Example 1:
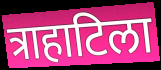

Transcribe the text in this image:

त्राहाटिला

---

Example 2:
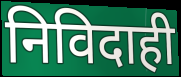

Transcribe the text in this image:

निविदाही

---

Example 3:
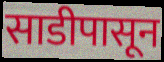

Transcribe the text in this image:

साडीपासून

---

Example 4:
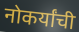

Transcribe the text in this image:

नोकर्यांची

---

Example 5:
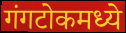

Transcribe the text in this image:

गंगटोकमध्ये